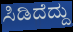
ಸಿಡಿದೆದ್ದು